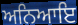
ਅਨਿਆਇ